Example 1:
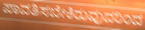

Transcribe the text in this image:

ಪಾವತಿಸಬೇಕಿರುವುದರಿಂದ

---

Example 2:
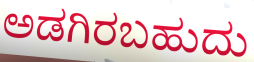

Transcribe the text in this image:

ಅಡಗಿರಬಹುದು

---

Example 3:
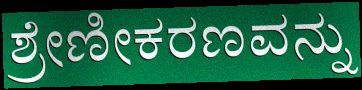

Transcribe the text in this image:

ಶ್ರೇಣೀಕರಣವನ್ನು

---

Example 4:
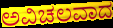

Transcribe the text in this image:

ಅವಿಚಲವಾದ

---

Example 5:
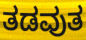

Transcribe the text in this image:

ತಡವುತ